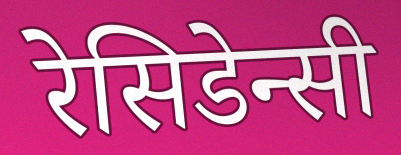
रेसिडेन्सी